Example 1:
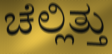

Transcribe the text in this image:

ಚೆಲ್ಲಿತ್ತು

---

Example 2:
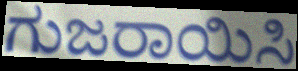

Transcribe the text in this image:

ಗುಜರಾಯಿಸಿ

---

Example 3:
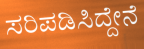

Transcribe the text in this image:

ಸರಿಪಡಿಸಿದ್ದೇನೆ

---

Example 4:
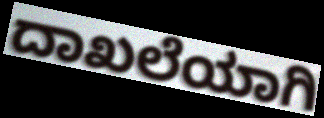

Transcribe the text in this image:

ದಾಖಲೆಯಾಗಿ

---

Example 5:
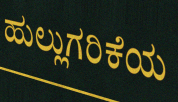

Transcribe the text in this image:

ಹುಲ್ಲುಗರಿಕೆಯ